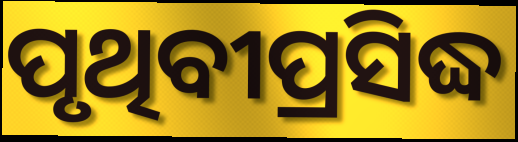
ପୃଥିବୀପ୍ରସିଦ୍ଧ